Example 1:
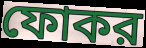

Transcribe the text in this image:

ফোকর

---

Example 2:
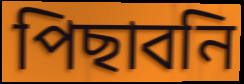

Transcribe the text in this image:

পিছাবনি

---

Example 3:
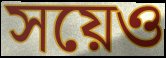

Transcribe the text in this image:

সয়েও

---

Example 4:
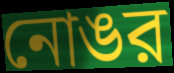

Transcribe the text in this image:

নোঙর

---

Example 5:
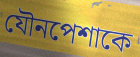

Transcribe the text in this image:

যৌনপেশাকে